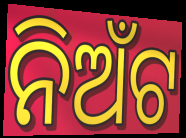
ନିଅଁଟ